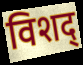
विशद्